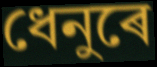
ধেনুৰে